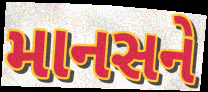
માનસને